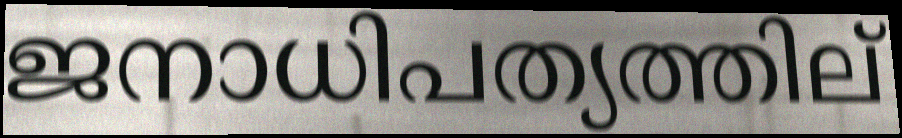
ജനാധിപത്യത്തില്